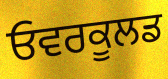
ਓਵਰਕੂਲਡ